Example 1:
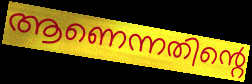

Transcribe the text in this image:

ആണെന്നതിന്റെ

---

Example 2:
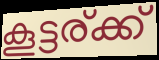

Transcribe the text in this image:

കൂട്ടര്ക്ക്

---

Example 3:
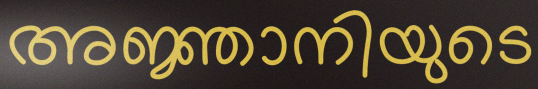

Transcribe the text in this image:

അജ്ഞാനിയുടെ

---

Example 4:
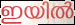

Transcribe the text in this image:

ഇയിൽ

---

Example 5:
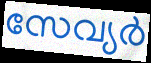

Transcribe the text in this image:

സേവ്യർ